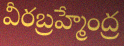
వీరబ్రహ్మేంద్ర